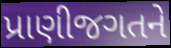
પ્રાણીજગતને